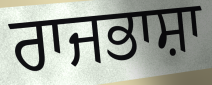
ਰਾਜਭਾਸ਼ਾ